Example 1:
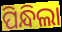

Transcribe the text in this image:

ପିନ୍ଧିଲା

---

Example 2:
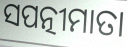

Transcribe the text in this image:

ସପତ୍ନୀମାତା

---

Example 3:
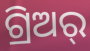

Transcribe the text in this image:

ଗ୍ରିଅର୍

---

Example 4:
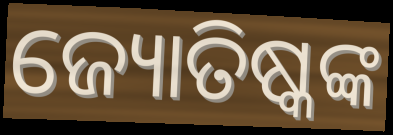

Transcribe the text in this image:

ଜ୍ୟୋତିଷ୍କଙ୍କ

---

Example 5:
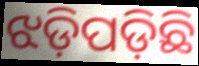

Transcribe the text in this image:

ଝଡ଼ିପଡ଼ିଛି